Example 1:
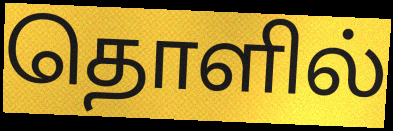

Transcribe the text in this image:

தொளில்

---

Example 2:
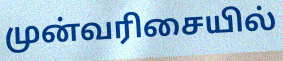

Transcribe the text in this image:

முன்வரிசையில்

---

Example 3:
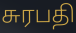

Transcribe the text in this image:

சுரபதி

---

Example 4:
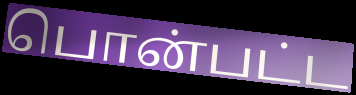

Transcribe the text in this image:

பொன்பட்ட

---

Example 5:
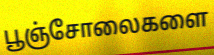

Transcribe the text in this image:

பூஞ்சோலைகளை